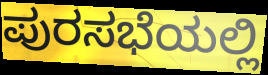
ಪುರಸಭೆಯಲ್ಲಿ